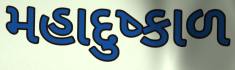
મહાદુષ્કાળ